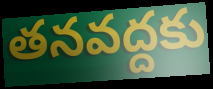
తనవద్దకు